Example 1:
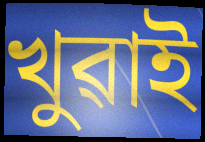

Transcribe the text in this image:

খুৱাই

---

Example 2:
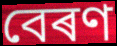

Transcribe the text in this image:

বেৰণ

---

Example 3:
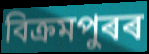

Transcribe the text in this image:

বিক্ৰমপুৰৰ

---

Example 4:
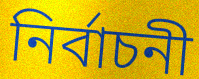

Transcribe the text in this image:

নিৰ্বাচনী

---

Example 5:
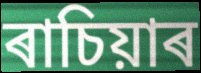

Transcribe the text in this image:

ৰাচিয়াৰ